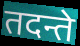
तदन्ते